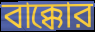
বাক্কোর